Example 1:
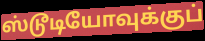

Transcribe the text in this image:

ஸ்டூடியோவுக்குப்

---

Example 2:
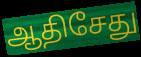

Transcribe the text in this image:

ஆதிசேது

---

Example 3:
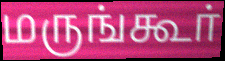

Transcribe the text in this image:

மருங்கூர்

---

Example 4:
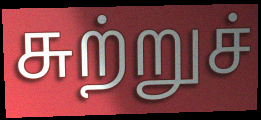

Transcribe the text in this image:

சுற்றுச்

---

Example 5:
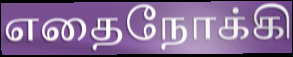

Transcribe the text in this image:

எதைநோக்கி